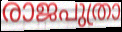
രാജപുത്രാ